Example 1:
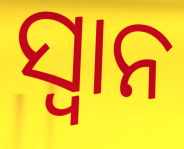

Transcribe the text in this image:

ସ୍ୱାନ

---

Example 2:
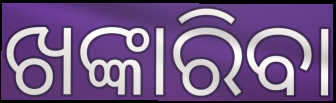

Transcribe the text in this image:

ଖଙ୍କାରିବା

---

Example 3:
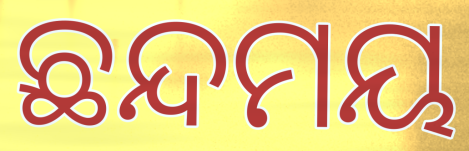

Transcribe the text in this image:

ଛନ୍ଦମୟ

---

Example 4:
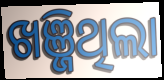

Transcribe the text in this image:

ଖଞ୍ଜିଥିଲା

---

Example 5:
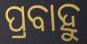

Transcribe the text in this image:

ପ୍ରବାହୁ